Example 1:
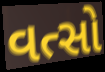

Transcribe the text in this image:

વત્સો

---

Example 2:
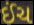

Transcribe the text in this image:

ઈંચ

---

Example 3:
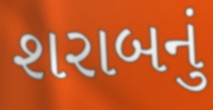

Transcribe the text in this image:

શરાબનું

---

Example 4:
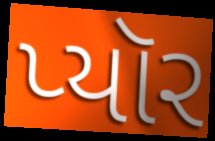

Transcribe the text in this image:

પ્યૉર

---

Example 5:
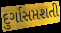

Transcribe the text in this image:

દુર્ગાસપ્તશતી